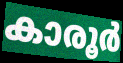
കാരൂർ